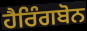
ਹੈਰਿੰਗਬੋਨ